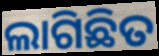
ଲାଗିଛିତ